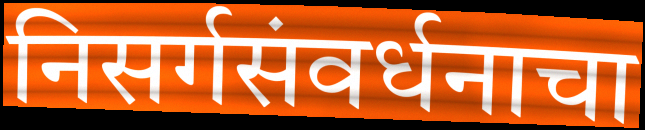
निसर्गसंवर्धनाचा